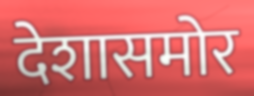
देशासमोर